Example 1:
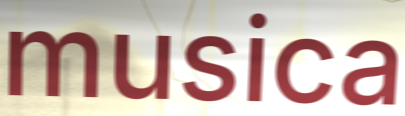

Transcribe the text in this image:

musica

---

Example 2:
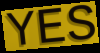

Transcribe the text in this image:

YES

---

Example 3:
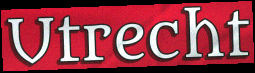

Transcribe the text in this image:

Utrecht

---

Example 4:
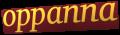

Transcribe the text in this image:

oppanna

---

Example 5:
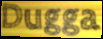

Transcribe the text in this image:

Dugga